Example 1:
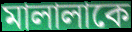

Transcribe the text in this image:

মালালাকে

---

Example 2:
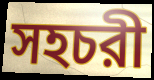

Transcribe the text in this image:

সহচরী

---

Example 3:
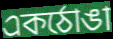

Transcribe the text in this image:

একঠোঙা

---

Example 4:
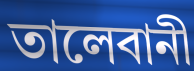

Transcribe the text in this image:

তালেবানী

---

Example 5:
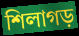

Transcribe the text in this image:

শিলাগড়